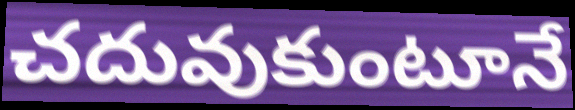
చదువుకుంటూనే